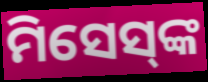
ମିସେସ୍‍ଙ୍କ